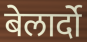
बेलार्दो